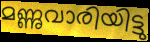
മണ്ണുവാരിയിട്ടു